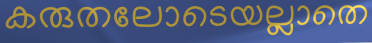
കരുതലോടെയല്ലാതെ